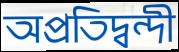
অপ্ৰতিদ্বন্দী